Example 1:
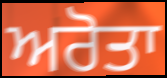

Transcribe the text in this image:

ਅਰੋਤਾ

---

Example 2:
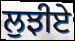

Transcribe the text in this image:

ਲੁਝੀਏ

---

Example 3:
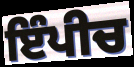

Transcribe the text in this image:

ਇੰਪੀਚ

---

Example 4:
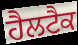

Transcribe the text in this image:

ਹੈਲਟੈਕ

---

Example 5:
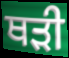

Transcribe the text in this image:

ਥੜੀ